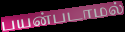
பயன்படாமல்